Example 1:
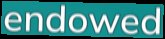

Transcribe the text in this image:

endowed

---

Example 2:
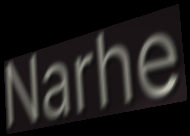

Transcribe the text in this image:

Narhe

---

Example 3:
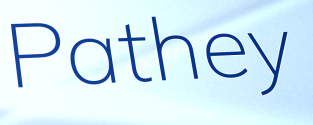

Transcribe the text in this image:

Pathey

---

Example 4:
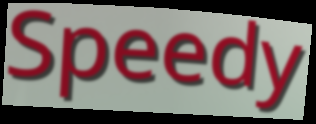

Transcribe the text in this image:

Speedy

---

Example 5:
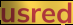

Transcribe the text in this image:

usred